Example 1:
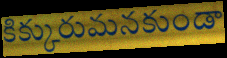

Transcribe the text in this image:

కిక్కురుమనకుండా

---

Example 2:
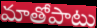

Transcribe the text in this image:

మాతోపాటు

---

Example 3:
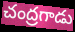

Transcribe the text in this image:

చంద్రగాడు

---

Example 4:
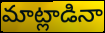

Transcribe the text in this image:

మాట్లాడినా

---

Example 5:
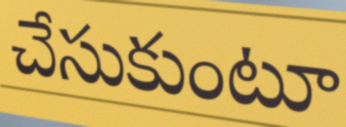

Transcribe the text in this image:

చేసుకుంటూ